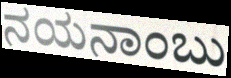
ನಯನಾಂಬು